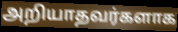
அறியாதவர்களாக